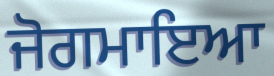
ਜੋਗਮਾਇਆ